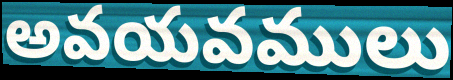
అవయవములు